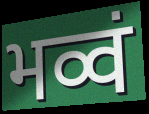
भव्वं